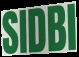
SIDBI